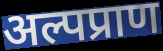
अल्पप्राण